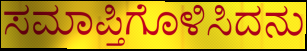
ಸಮಾಪ್ತಿಗೊಳಿಸಿದನು